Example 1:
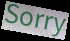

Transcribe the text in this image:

Sorry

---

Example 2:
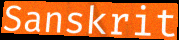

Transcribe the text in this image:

Sanskrit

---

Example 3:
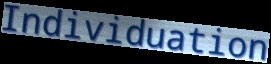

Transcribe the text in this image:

Individuation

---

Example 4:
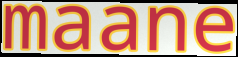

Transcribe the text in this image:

maane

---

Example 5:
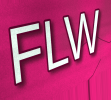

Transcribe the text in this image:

FLW